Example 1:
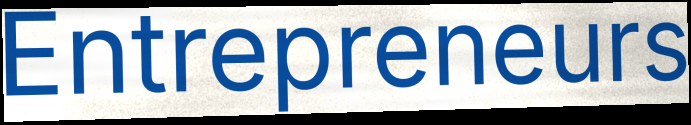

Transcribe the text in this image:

Entrepreneurs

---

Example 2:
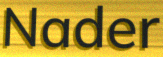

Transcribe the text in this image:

Nader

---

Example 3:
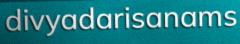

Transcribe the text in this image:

divyadarisanams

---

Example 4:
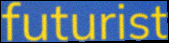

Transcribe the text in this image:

futurist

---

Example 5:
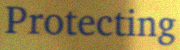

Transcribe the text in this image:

Protecting